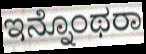
ಇನ್ನೊಂಥರಾ